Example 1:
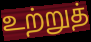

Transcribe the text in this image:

உற்றுத்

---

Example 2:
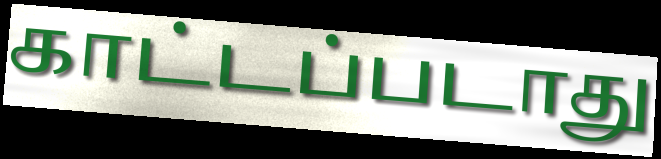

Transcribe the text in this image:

காட்டப்படாது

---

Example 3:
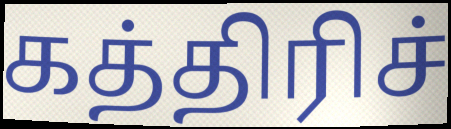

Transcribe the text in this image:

கத்திரிச்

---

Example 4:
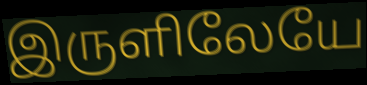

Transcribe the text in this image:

இருளிலேயே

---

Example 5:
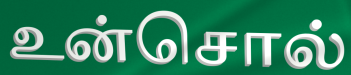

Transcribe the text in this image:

உன்சொல்